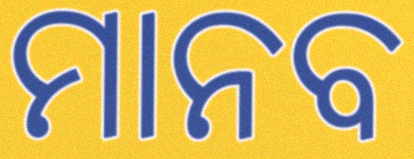
ମାନବ